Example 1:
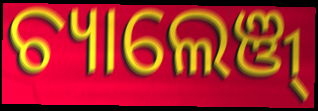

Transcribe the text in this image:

ଚ୍ୟାଲେଞ୍ଜ୍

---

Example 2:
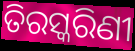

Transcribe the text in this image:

ତିରସ୍କରିଣୀ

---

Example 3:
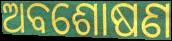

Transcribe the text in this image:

ଅବଶୋଷଣ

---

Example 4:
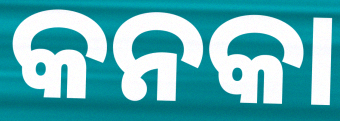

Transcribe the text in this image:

କନକା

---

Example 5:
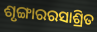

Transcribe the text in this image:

ଶୃଙ୍ଗାରରସାଶ୍ରିତ